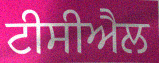
ਟੀਸੀਐਲ